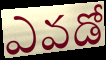
ఎవడో